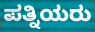
ಪತ್ನಿಯರು